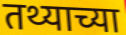
तथ्याच्या